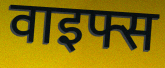
वाइफ्स